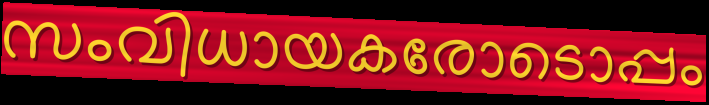
സംവിധായകരോടൊപ്പം